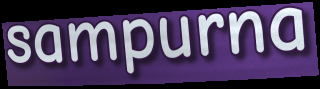
sampurna